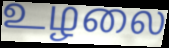
உழலை